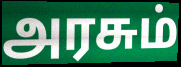
அரசும்